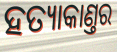
ହତ୍ୟାକାଣ୍ତର